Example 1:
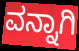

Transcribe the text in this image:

ವನ್ನಾಗಿ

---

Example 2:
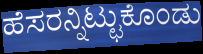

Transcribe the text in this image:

ಹೆಸರನ್ನಿಟ್ಟುಕೊಂಡು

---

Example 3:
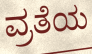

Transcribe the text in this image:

ವ್ರತೆಯ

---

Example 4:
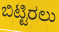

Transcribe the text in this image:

ಬಿಟ್ಟಿರಲು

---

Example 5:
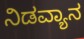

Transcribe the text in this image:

ನಿಡವ್ಯಾನ